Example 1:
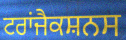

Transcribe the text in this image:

ਟਰਾਂਜੈਕਸ਼ਨਸ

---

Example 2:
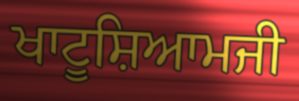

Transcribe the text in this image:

ਖਾਟੂਸ਼ਿਆਮਜੀ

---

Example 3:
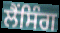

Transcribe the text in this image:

ਲੈਂਸਿੰਗ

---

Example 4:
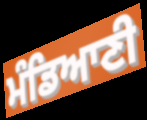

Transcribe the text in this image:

ਮੰਡਿਆਣੀ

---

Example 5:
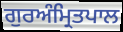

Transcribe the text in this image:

ਗੁਰਅੰਮ੍ਰਿਤਪਾਲ